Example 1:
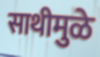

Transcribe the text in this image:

साथीमुळे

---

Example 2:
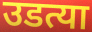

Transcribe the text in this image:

उडत्या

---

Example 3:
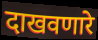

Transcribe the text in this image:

दाखवणारे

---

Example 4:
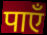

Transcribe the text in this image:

पाएँ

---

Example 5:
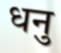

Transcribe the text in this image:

धनु